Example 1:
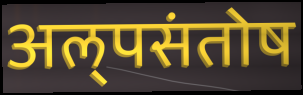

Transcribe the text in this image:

अल्पसंतोष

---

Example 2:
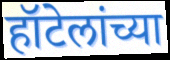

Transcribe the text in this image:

हॉटेलांच्या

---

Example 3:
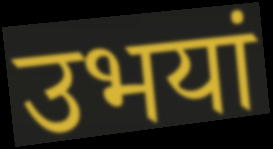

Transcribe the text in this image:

उभयां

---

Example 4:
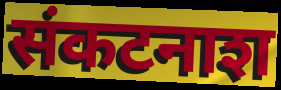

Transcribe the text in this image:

संकटनाश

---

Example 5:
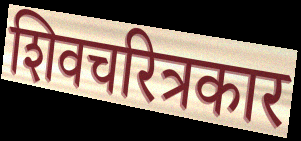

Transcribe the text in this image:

शिवचरित्रकार